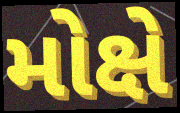
મોક્ષે